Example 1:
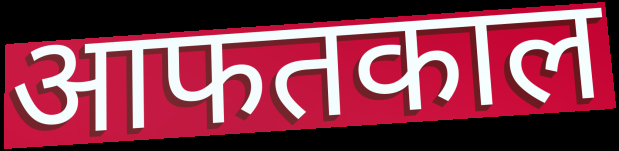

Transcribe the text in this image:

आफतकाल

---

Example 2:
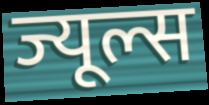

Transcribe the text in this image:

ज्यूल्स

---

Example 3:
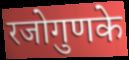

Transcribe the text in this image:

रजोगुणके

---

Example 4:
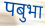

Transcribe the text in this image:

पबुभा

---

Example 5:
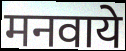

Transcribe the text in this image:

मनवाये